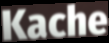
Kache